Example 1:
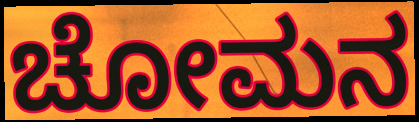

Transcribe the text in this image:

ಚೋಮನ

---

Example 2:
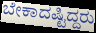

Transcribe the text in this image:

ಬೇಕಾದಷ್ಟಿದ್ದರು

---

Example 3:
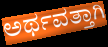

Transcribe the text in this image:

ಅರ್ಥವತ್ತಾಗಿ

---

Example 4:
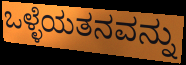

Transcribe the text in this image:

ಒಳ್ಳೆಯತನವನ್ನು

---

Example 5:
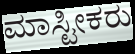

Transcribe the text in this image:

ಮಾಸ್ಟೀಕರು